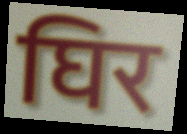
घिर